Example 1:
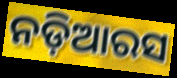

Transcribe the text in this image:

ନଡ଼ିଆରସ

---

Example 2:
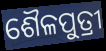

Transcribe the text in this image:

ଶୈଳପୁତ୍ରୀ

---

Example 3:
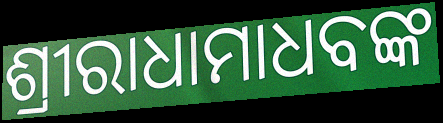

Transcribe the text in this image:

ଶ୍ରୀରାଧାମାଧବଙ୍କ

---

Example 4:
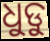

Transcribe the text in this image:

ଧୁଡୁ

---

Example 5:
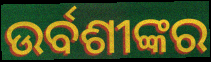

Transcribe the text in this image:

ଉର୍ବଶୀଙ୍କର